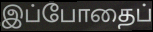
இப்போதைப்